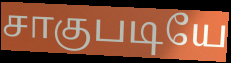
சாகுபடியே